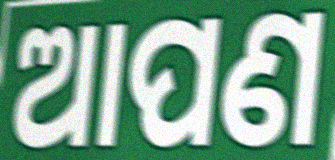
ଆପଣ